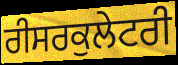
ਰੀਸਰਕੁਲੇਟਰੀ